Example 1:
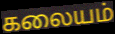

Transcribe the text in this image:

கலையம்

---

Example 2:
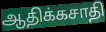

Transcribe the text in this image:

ஆதிக்கசாதி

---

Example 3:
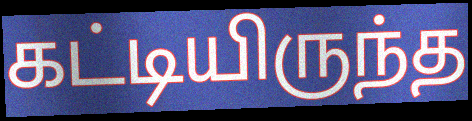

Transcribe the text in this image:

கட்டியிருந்த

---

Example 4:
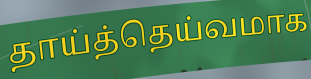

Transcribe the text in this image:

தாய்த்தெய்வமாக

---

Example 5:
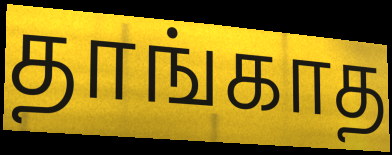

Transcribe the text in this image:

தாங்காத